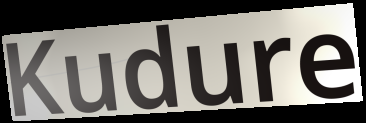
Kudure